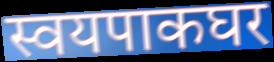
स्वयपाकघर